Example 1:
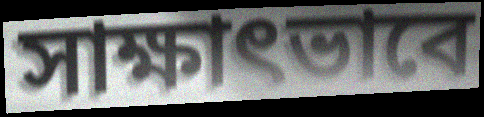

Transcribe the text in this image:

সাক্ষাৎভাবে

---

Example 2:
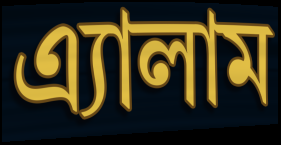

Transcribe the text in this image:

এ্যালাম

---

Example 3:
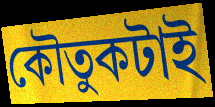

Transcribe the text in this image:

কৌতুকটাই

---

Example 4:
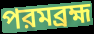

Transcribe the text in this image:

পরমব্রহ্ম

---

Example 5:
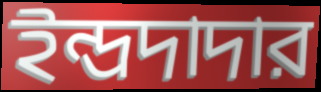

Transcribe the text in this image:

ইন্দ্রদাদার